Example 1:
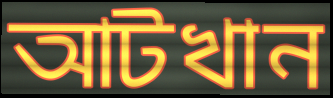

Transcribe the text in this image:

আটখান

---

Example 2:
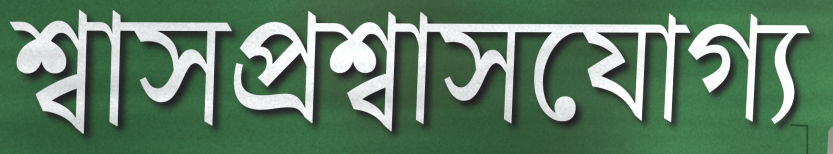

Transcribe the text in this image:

শ্বাসপ্রশ্বাসযোগ্য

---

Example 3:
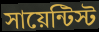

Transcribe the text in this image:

সায়েন্টিস্ট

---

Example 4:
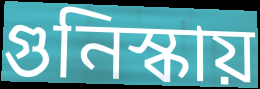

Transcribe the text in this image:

গুনিস্কায়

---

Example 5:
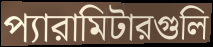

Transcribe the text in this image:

প্যারামিটারগুলি